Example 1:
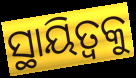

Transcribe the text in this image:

ସ୍ଥାୟିତ୍ୱକୁ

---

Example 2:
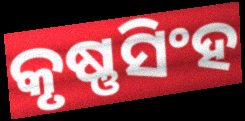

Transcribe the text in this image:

କୃଷ୍ଣସିଂହ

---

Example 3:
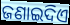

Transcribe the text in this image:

ଜଣାଇଦିଏ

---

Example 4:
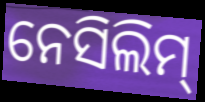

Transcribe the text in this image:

ନେସିଲିମ୍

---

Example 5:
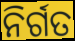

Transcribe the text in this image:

ନିର୍ଗତ